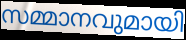
സമ്മാനവുമായി